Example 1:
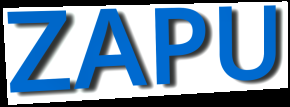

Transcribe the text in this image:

ZAPU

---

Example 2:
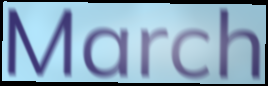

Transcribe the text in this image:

March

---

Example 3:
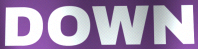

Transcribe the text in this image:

DOWN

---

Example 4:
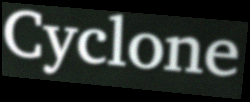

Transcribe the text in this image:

Cyclone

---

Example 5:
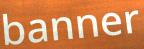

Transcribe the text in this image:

banner